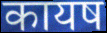
कायष